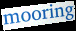
mooring